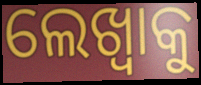
ଲେଖ୍ବାକୁ